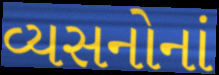
વ્યસનોનાં